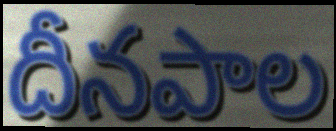
దీనపాల